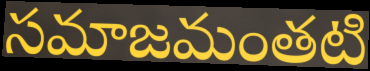
సమాజమంతటి